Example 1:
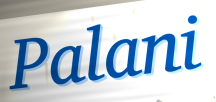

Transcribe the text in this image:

Palani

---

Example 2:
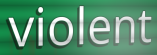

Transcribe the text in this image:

violent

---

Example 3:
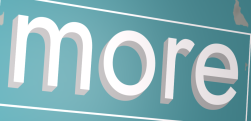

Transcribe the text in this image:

more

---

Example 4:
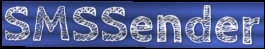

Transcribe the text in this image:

SMSSender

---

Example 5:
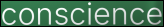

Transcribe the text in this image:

conscience